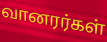
வானரர்கள்